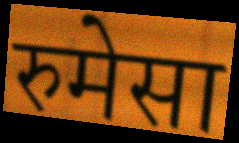
रुमेसा